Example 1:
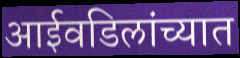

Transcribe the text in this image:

आईवडिलांच्यात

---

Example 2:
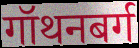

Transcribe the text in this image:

गॉथनबर्ग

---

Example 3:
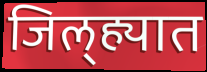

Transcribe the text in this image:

जिल्ह्यात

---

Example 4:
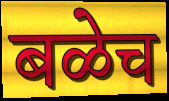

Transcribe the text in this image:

बळेच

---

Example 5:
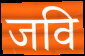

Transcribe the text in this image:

जवि